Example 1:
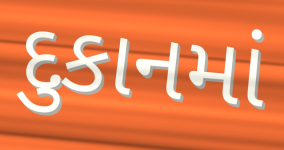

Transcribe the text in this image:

દુકાનમાં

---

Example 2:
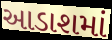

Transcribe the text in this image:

આડાશમાં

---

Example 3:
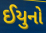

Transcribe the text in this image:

ઈયુનો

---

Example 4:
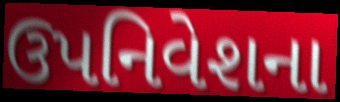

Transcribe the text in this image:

ઉપનિવેશના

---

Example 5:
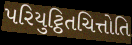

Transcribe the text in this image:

પરિયુટ્ઠિતચિત્તોતિ